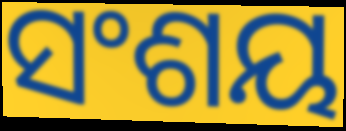
ସଂଶୟ